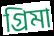
গ্রিমা